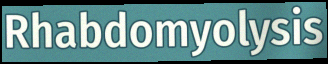
Rhabdomyolysis